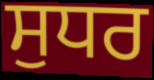
ਸੁਧਰ